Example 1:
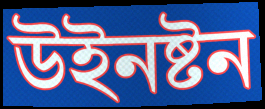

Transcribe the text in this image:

উইনষ্টন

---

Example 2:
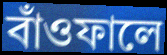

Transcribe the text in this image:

বাঁওফালে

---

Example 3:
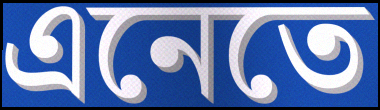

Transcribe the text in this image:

এনেতে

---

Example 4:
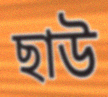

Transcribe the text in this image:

ছাউ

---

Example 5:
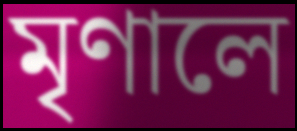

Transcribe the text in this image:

মৃণালে